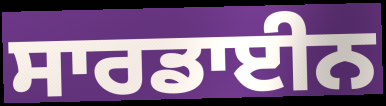
ਸਾਰਡਾਈਨ